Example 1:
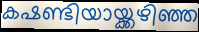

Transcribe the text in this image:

കഷണ്ടിയായ്ക്കഴിഞ്ഞ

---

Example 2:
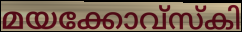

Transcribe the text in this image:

മയക്കോവ്സ്കി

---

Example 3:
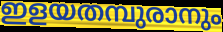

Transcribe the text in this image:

ഇളയതമ്പുരാനും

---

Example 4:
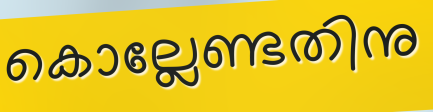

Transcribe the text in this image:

കൊല്ലേണ്ടതിനു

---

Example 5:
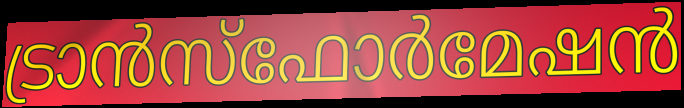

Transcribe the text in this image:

ട്രാൻസ്ഫോർമേഷൻ